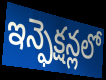
ఇన్ఫెక్షన్లలో